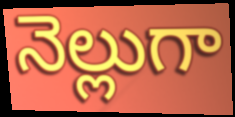
నెల్లుగా